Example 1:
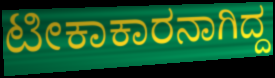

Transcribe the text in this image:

ಟೀಕಾಕಾರನಾಗಿದ್ದ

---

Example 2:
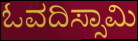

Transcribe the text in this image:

ಓವದಿಸ್ಸಾಮಿ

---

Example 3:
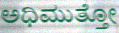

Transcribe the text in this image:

ಅಧಿಮುತ್ತೋ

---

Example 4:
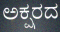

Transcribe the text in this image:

ಅಕ್ಷರದ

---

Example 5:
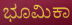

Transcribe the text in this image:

ಭೂಮಿಕಾ